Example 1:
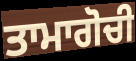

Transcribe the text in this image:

ਤਾਮਾਗੋਚੀ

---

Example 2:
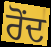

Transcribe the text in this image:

ਰੋਂਦ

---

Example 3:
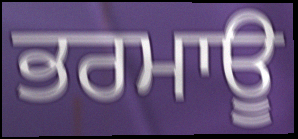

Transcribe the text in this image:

ਭਰਮਾਊ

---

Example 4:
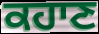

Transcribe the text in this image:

ਕਹਾਣ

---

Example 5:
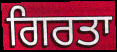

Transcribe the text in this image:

ਗਿਰਤਾ